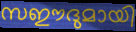
സഈദുമായി